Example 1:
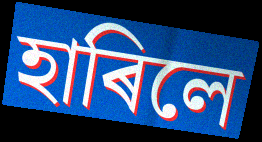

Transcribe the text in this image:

হাৰিলে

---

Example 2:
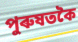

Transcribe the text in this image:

পুৰুষতকৈ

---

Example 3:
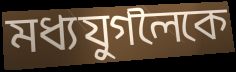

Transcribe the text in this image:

মধ্যযুগলৈকে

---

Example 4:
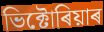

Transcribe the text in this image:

ভিক্টোৰিয়াৰ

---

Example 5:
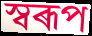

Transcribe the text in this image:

স্বৰূপ